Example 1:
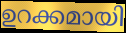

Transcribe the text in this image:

ഉറക്കമായി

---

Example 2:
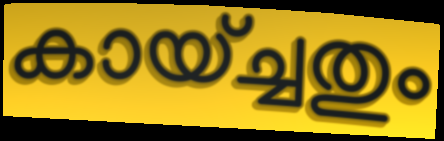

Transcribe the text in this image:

കായ്ച്ചതും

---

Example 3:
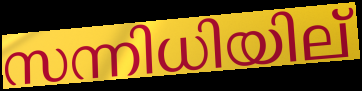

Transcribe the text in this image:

സന്നിധിയില്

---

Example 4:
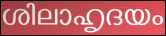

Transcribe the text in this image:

ശിലാഹൃദയം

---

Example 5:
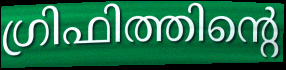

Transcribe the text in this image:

ഗ്രിഫിത്തിന്റെ